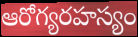
ఆరోగ్యరహస్యం